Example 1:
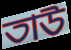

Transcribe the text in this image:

তাউ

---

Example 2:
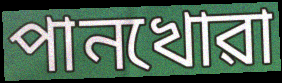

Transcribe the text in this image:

পানখোৱা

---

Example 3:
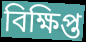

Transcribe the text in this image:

বিক্ষিপ্ত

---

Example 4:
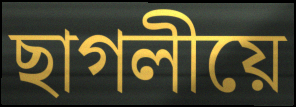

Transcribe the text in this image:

ছাগলীয়ে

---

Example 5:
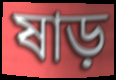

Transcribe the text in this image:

ষাড়